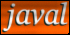
javal